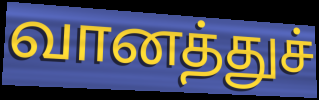
வானத்துச்